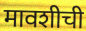
मावशीची